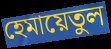
হেমায়েতুল